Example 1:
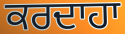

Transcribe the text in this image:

ਕਰਦਾਹਾ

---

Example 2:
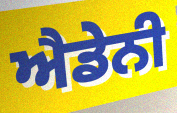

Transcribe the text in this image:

ਐਡੇਨੀ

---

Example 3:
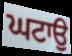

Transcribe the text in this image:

ਘਟਾਉ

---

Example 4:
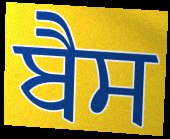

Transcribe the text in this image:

ਬੈਸ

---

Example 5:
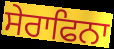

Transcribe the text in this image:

ਸੇਰਾਫਿਨਾ